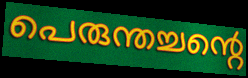
പെരുന്തച്ചന്റെ